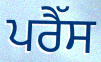
ਪਰੈੱਸ